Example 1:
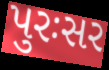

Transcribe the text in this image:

પુરઃસર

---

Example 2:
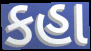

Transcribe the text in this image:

કહા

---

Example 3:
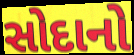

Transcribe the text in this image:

સોદાનો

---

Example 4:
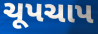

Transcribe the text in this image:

ચૂપચાપ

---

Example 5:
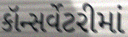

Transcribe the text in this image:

કૉન્સર્વેટરીમાં